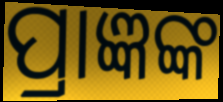
ପ୍ରାଜ୍ଞଙ୍କ